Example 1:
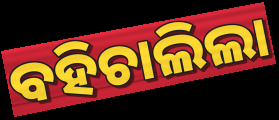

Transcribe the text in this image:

ବହିଚାଲିଲା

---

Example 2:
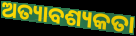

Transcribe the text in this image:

ଅତ୍ୟାବଶ୍ୟକତା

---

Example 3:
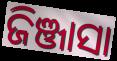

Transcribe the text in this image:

ଜିଞ୍ଜାସା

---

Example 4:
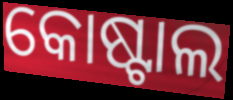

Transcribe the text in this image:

କୋଷ୍ଟାଲ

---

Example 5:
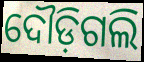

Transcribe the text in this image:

ଦୌଡ଼ିଗଲି